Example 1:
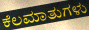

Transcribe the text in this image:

ಕೆಲಮಾತುಗಳು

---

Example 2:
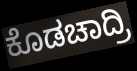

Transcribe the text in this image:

ಕೊಡಚಾದ್ರಿ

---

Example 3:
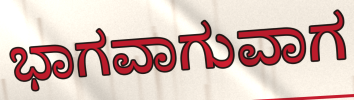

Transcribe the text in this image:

ಭಾಗವಾಗುವಾಗ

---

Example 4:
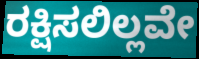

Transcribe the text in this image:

ರಕ್ಷಿಸಲಿಲ್ಲವೇ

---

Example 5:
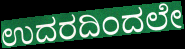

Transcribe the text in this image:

ಉದರದಿಂದಲೇ